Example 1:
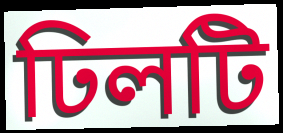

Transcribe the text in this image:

ঢিলটি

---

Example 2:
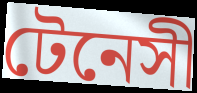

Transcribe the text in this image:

টেনেসী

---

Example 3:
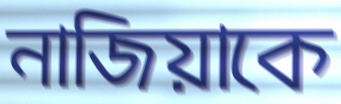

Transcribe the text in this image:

নাজিয়াকে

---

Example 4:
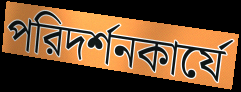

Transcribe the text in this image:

পরিদর্শনকার্যে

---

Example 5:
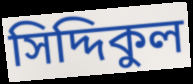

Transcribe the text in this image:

সিদ্দিকুল